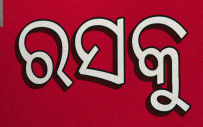
ରସକୁ